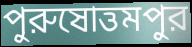
পুরুষোত্তমপুর